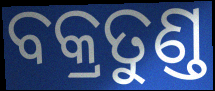
ବକ୍ରତୁଣ୍ଡ